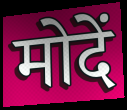
मोदें